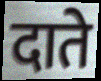
दाते